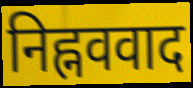
निह्नववाद